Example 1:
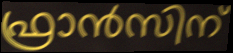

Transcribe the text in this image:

ഫ്രാൻസിന്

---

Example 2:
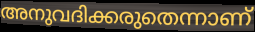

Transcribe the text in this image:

അനുവദിക്കരുതെന്നാണ്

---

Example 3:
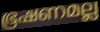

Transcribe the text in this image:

ഭൂഷണമല്ല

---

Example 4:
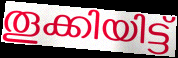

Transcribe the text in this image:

തൂക്കിയിട്ട്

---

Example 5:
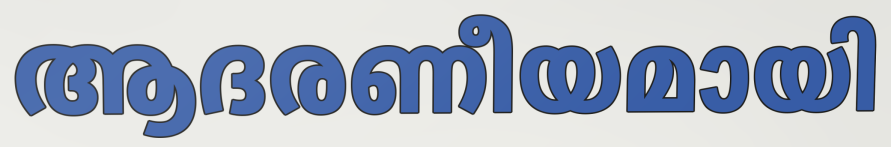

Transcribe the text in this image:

ആദരണീയമായി